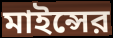
মাইন্সের